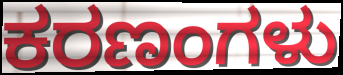
ಕರಣಂಗಳು